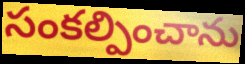
సంకల్పించాను